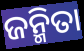
ଜନ୍ମିତା